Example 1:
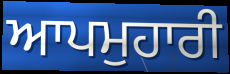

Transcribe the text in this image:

ਆਪਮੁਹਾਰੀ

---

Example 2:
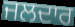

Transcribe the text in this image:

ਜਲਦਾਰ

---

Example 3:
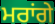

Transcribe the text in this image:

ਮਰਾਂਗੇ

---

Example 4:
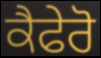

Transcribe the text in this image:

ਕੈਫੇਰੋ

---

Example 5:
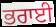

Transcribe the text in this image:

ਭਰਾਈ